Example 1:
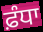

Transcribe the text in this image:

ਫ਼ੰਧਾ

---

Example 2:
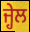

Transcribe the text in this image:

ਜ੍ਹੇਲ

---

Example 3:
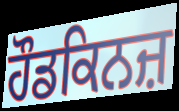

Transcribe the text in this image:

ਹੌਡਕਿਨਜ਼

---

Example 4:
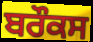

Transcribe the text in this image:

ਬਰੌਕਸ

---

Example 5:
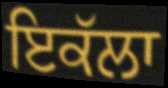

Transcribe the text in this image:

ਇਕੱਲਾ